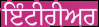
ਇੰਟੀਰੀਅਰ